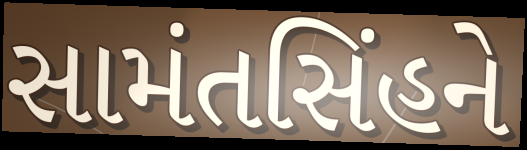
સામંતસિંહને